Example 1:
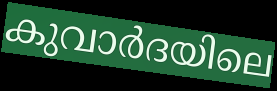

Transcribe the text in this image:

കുവാർദയിലെ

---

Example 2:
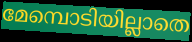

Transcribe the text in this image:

മേമ്പൊടിയില്ലാതെ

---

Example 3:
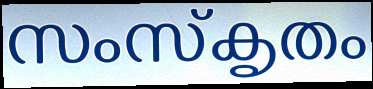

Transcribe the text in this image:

സംസ്‌കൃതം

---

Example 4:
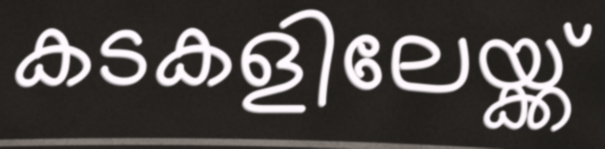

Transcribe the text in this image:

കടകളിലേയ്ക്ക്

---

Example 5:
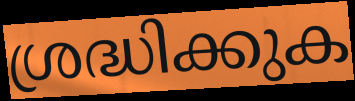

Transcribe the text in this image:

ശ്രദ്ധിക്കുക